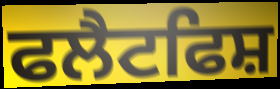
ਫਲੈਟਫਿਸ਼